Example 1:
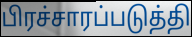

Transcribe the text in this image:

பிரச்சாரப்படுத்தி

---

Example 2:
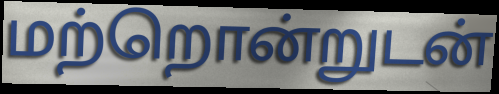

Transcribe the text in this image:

மற்றொன்றுடன்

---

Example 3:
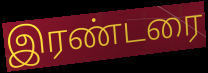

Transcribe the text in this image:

இரண்டரை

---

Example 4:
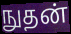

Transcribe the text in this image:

நுதன்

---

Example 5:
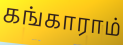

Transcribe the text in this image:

கங்காராம்